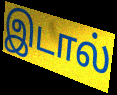
இடால்